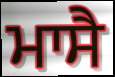
ਮਾਸੈ